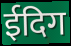
ईदिग